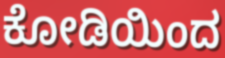
ಕೋಡಿಯಿಂದ